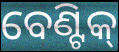
ବେଣ୍ଟିକ୍